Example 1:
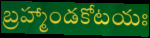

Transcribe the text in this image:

బ్రహ్మాండకోటయః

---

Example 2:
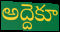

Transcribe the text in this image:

అద్దెకూ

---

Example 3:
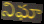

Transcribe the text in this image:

నిఘా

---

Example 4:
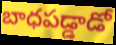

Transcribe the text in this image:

బాధపడ్డాడో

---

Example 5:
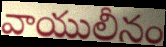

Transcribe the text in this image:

వాయులీనం